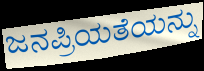
ಜನಪ್ರಿಯತೆಯನ್ನು